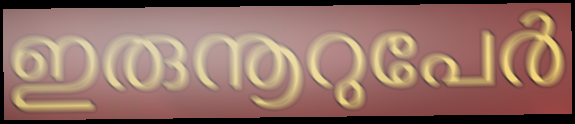
ഇരുനൂറുപേർ